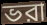
ভরা